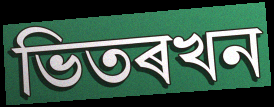
ভিতৰখন